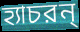
হ্যাচরন্